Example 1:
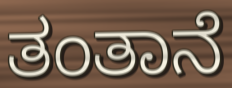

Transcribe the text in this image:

ತಂತಾನೆ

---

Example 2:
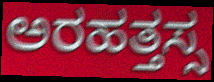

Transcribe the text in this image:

ಅರಹತ್ತಸ್ಸ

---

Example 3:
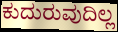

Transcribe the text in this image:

ಕುದುರುವುದಿಲ್ಲ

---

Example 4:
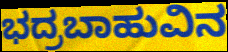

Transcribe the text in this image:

ಭದ್ರಬಾಹುವಿನ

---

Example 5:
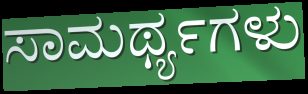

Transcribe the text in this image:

ಸಾಮರ್ಥ್ಯಗಳು